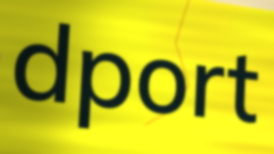
dport